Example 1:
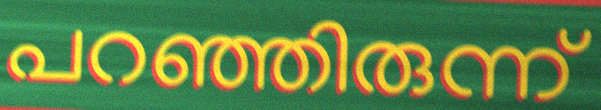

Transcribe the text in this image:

പറഞ്ഞിരുന്ന്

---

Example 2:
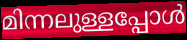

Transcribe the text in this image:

മിന്നലുള്ളപ്പോൾ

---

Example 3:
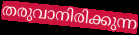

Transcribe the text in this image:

തരുവാനിരിക്കുന്ന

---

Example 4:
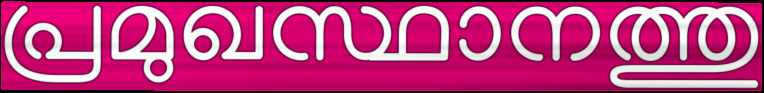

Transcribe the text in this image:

പ്രമുഖസ്ഥാനത്തു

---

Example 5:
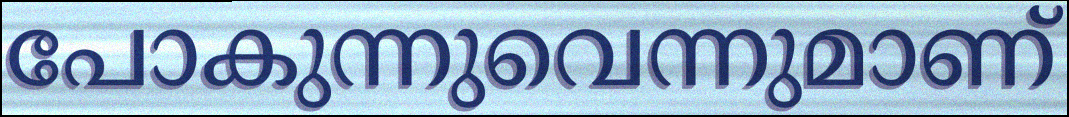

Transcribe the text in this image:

പോകുന്നുവെന്നുമാണ്